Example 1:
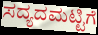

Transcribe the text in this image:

ಸದ್ಯದಮಟ್ಟಿಗೆ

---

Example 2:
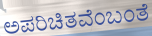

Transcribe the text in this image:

ಅಪರಿಚಿತವೆಂಬಂತೆ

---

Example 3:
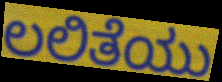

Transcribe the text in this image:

ಲಲಿತೆಯು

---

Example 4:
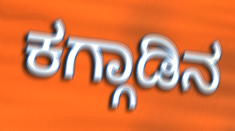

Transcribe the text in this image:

ಕಗ್ಗಾಡಿನ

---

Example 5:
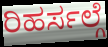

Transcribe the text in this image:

ರಿಹರ್ಸಲ್ಗೆ